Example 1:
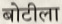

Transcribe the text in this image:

बोटीला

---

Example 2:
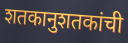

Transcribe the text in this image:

शतकानुशतकांची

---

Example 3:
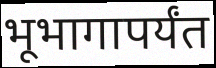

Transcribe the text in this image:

भूभागापर्यंत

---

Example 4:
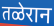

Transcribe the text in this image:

तळेरान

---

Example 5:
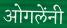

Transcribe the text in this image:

ओगलेंनी